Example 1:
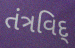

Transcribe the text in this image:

તંત્રવિદ્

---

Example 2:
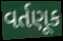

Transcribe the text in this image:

વર્તણૂક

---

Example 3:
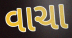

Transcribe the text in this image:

વાચા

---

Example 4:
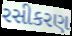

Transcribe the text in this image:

રસીકરણ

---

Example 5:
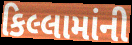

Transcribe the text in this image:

કિલ્લામાંની